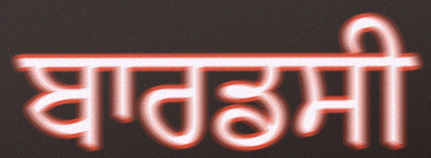
ਬਾਰਡਸੀ